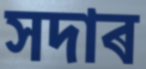
সদাৰ